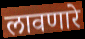
लावणारे